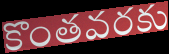
కొంతవరకు